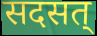
सदसत्